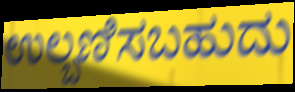
ಉಲ್ಬಣಿಸಬಹುದು